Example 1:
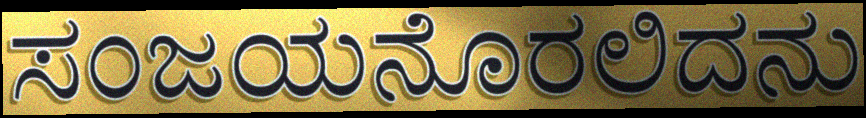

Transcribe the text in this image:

ಸಂಜಯನೊರಲಿದನು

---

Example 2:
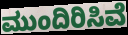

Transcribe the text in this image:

ಮುಂದಿರಿಸಿವೆ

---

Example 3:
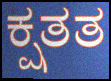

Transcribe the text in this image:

ಕ್ಷತತ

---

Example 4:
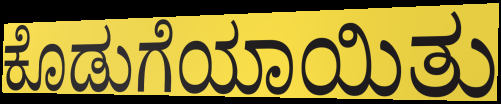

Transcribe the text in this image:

ಕೊಡುಗೆಯಾಯಿತು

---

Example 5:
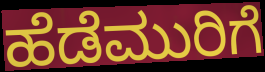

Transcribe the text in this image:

ಹೆಡೆಮುರಿಗೆ